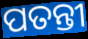
ପତନ୍ତୀ